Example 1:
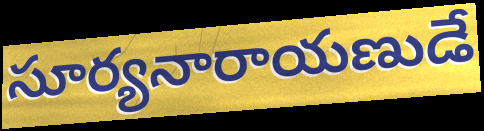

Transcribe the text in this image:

సూర్యనారాయణుడే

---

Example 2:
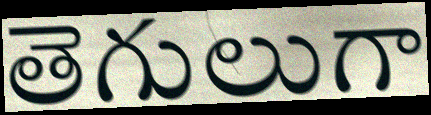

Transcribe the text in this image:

తెగులుగా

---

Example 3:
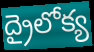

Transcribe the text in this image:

ద్రైలోక్య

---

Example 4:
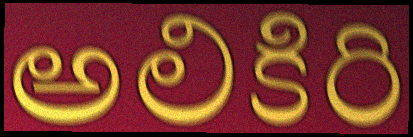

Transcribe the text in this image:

అలికిరి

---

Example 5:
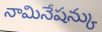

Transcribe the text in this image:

నామినేషన్కు